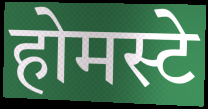
होमस्टे